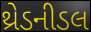
થ્રેડનીડલ